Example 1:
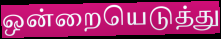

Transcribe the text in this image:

ஒன்றையெடுத்து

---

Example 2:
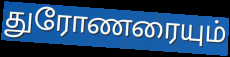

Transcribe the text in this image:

துரோணரையும்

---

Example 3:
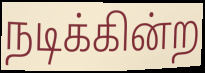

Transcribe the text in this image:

நடிக்கின்ற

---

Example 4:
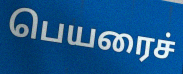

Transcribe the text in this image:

பெயரைச்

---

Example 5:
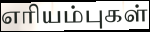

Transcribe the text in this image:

எரியம்புகள்